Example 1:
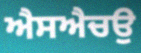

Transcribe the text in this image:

ਐਸਐਚਉ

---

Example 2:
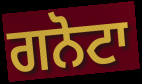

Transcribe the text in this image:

ਗਨੋਟਾ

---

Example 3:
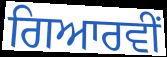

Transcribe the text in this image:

ਗਿਆਰਵੀਂ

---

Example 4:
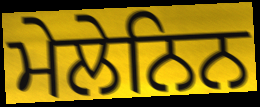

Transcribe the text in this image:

ਮੇਲੇਨਿਨ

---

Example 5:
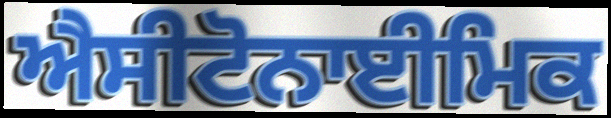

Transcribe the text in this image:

ਐਸੀਟੋਨਾਈਮਿਕ